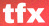
tfx